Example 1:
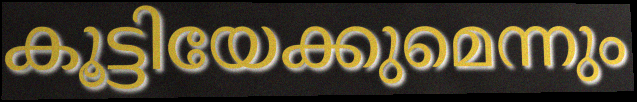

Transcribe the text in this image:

കൂട്ടിയേക്കുമെന്നും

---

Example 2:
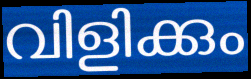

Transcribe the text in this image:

വിളിക്കും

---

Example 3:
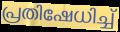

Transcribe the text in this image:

പ്രതിഷേധിച്ച്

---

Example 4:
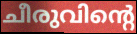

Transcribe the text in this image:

ചീരുവിന്റെ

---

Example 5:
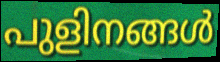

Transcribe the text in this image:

പുളിനങ്ങൾ